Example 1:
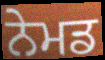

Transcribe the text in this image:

ਨੇਮਡ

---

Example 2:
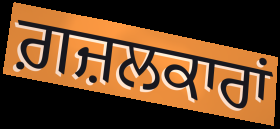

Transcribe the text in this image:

ਗ਼ਜ਼ਲਕਾਰਾਂ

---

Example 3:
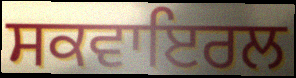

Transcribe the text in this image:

ਸਕਵਾਇਰਲ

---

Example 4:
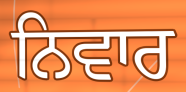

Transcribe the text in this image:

ਨਿਵਾਰ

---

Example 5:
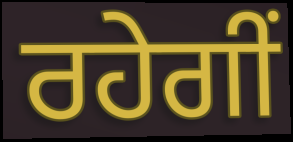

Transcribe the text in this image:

ਰਹੇਗੀਂ